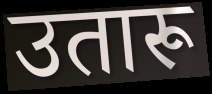
उतारू